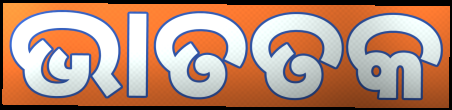
ଭାତତକ